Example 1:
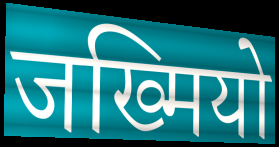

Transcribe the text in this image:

जख्मियो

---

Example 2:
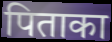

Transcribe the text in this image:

पिताका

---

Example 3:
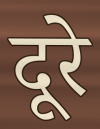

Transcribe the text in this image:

दूरे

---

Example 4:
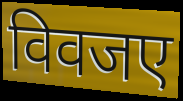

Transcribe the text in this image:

विवजए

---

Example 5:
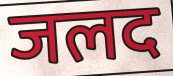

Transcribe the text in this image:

जलद